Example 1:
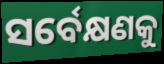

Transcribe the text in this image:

ସର୍ବେକ୍ଷଣକୁ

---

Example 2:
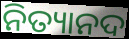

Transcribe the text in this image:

ନିତ୍ୟାନଦ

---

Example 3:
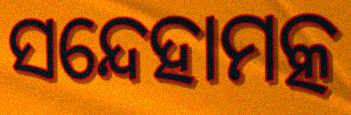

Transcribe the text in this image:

ସନ୍ଦେହାମତ୍କ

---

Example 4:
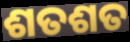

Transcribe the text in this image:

ଶତଶତ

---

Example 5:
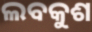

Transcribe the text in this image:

ଲବକୁଶ